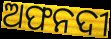
ଅଫନଦୀ